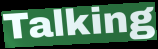
Talking